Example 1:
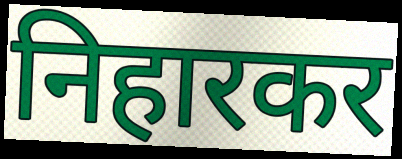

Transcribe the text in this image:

निहारकर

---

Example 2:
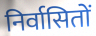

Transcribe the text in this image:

निर्वासितों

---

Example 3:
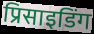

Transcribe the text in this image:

प्रिसाइडिंग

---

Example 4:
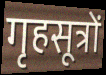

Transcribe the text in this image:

गृहसूत्रों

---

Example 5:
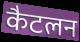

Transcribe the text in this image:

कैटलन